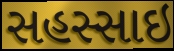
સહસ્સાઇ